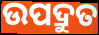
ଉପଦ୍ରୁତ